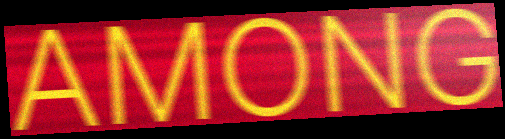
AMONG